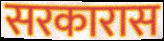
सरकारास